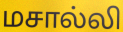
மசால்லி